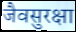
जैवसुरक्षा